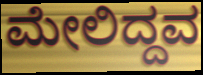
ಮೇಲಿದ್ದವ